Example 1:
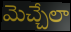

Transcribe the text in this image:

మెచ్చేలా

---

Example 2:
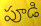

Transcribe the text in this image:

పూడి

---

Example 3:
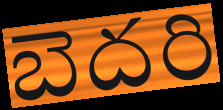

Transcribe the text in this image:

బెదరి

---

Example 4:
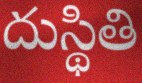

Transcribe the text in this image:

దుస్థితి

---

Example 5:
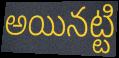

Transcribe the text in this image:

అయినట్టి